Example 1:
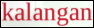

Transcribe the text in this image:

kalangan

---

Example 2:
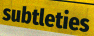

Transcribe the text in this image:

subtleties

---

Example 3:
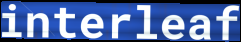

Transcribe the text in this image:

interleaf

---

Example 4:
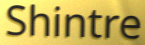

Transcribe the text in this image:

Shintre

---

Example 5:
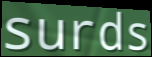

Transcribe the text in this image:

surds